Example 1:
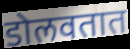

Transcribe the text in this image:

डोलवतात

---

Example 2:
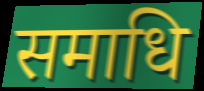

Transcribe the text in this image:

समाधि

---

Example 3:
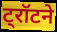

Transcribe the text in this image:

ट्रॉटने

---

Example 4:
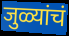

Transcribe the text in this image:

जुळ्यांचं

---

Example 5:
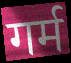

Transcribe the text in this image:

गर्म